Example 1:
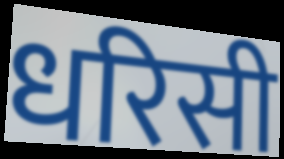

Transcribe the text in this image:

धरिसी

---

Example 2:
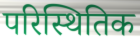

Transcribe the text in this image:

परिस्थितिक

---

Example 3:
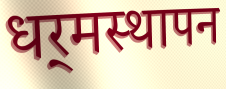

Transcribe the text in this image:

धर्मस्थापन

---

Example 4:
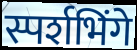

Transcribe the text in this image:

स्पर्शभिंगे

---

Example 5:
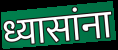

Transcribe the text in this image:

ध्यासांना